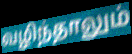
வழிந்தாலும்